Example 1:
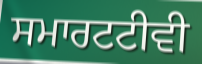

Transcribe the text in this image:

ਸਮਾਰਟਟੀਵੀ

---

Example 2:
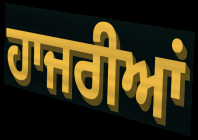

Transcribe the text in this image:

ਹਾਜਰੀਆਂ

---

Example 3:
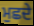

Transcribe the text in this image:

ਮੁਛਦੇ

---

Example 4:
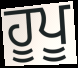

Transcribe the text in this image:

ਹੂਪੂ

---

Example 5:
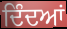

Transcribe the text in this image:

ਦਿੰਦਆਂ